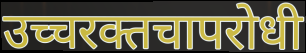
उच्चरक्तचापरोधी